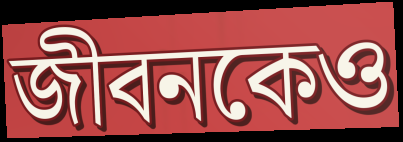
জীবনকেও